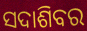
ସଦାଶିବର